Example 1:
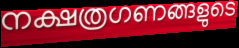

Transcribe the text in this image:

നക്ഷത്രഗണങ്ങളുടെ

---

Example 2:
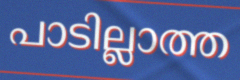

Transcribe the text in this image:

പാടില്ലാത്ത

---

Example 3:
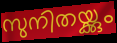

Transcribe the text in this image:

സുനിതയ്ക്കും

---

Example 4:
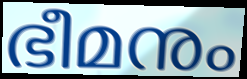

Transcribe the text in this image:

ഭീമനും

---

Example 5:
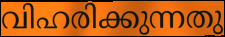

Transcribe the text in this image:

വിഹരിക്കുന്നതു